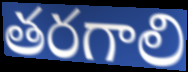
తరగాలి